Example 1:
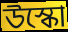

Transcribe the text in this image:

উস্কো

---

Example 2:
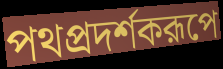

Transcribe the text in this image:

পথপ্রদর্শকরূপে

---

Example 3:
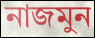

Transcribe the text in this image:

নাজমুন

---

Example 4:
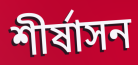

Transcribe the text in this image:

শীর্ষাসন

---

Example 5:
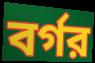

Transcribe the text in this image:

বর্গর